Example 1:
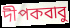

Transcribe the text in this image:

দীপকবাবু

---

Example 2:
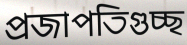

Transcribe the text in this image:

প্রজাপতিগুচ্ছ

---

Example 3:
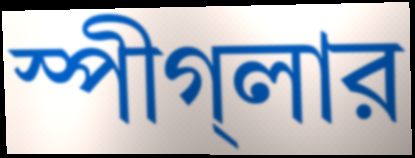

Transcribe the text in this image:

স্পীগ্‌লার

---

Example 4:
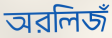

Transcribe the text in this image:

অরলিজঁ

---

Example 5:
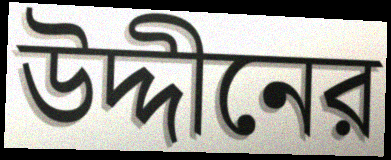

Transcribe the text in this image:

উদ্দীনের